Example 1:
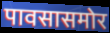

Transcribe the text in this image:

पावसासमोर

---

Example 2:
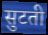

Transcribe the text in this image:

सुटती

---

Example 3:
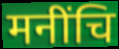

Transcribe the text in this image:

मनींचि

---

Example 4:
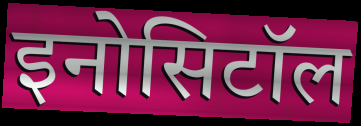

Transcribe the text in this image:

इनोसिटॉल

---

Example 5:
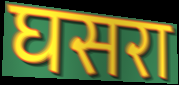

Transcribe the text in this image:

घसरा